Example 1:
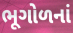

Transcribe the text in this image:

ભૂગોળનાં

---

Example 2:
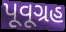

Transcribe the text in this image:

પૂવૂગ્રહ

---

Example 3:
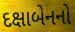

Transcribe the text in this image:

દક્ષાબેનનો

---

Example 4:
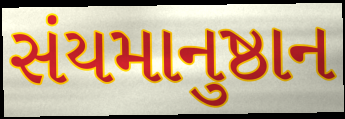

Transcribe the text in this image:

સંયમાનુષ્ઠાન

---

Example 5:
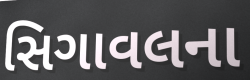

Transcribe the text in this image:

સિગાવલના